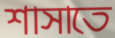
শাসাতে